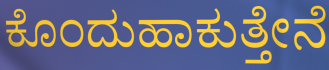
ಕೊಂದುಹಾಕುತ್ತೇನೆ